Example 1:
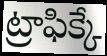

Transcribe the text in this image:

ట్రాఫిక్కే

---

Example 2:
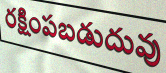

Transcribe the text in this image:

రక్షింపబడుదువు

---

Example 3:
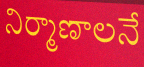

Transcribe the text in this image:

నిర్మాణాలనే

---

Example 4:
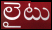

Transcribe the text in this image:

లైటు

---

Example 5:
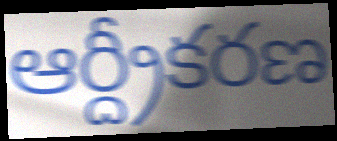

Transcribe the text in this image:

ఆర్ద్రీకరణ